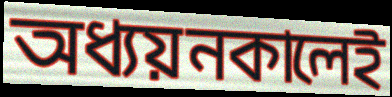
অধ্যয়নকালেই